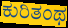
ಕುರಿತಂಥ